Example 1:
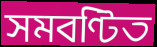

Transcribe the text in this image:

সমবণ্টিত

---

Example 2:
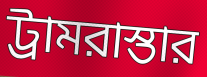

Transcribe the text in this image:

ট্রামরাস্তার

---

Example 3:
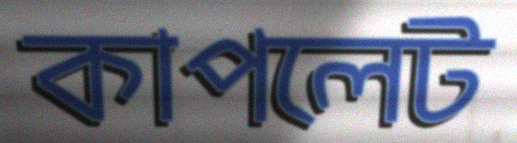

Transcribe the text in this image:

কাপলেট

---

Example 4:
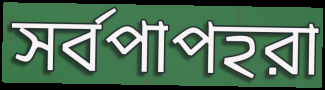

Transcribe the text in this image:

সর্বপাপহরা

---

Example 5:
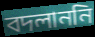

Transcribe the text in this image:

বদলাননি